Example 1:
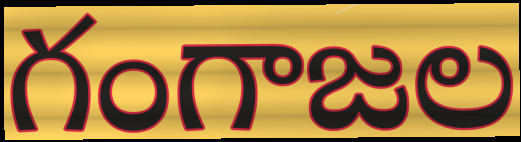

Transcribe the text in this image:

గంగాజల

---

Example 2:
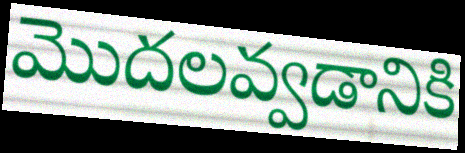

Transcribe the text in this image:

మొదలవ్వడానికి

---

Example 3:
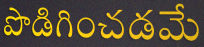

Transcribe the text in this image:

పొడిగించడమే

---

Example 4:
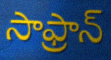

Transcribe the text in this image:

సాఫ్రాన్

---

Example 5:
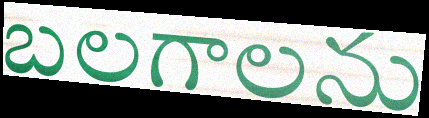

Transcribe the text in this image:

బలగాలను